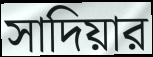
সাদিয়ার